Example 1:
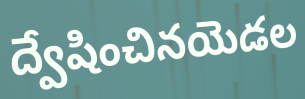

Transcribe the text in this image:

ద్వేషించినయెడల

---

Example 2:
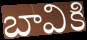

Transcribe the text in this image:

బావికి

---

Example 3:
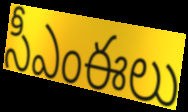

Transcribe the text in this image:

సీఎంఈలు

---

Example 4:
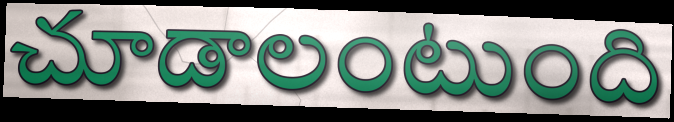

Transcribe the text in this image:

చూడాలంటుంది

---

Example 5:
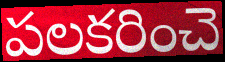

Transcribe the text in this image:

పలకరించె